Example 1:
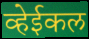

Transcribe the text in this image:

व्हेईकल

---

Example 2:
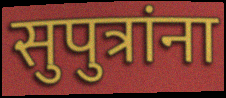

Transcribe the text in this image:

सुपुत्रांना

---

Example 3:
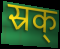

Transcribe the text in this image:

स्रक्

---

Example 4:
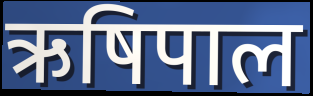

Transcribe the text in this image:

ऋषिपाल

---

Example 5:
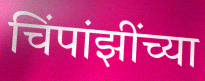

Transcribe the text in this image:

चिंपांझींच्या